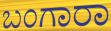
ಬಂಗಾರಾ